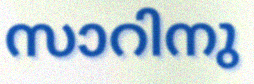
സാറിനു